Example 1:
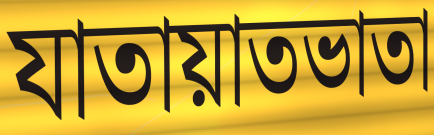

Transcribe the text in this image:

যাতায়াতভাতা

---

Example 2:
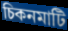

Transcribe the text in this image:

চিকনমাটি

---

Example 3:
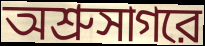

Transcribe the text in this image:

অশ্রুসাগরে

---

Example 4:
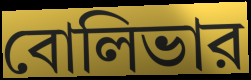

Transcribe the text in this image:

বোলিভার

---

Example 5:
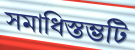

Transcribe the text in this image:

সমাধিস্তম্ভটি